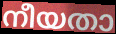
നീയതാ